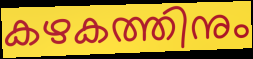
കഴകത്തിനും